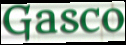
Gasco